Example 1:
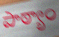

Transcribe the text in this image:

పాఠ్యాం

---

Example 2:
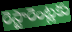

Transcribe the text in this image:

రెస్టారెంట్లకు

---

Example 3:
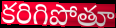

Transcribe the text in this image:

కరిగిపోతూ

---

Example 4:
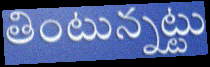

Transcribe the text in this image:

తింటున్నట్టు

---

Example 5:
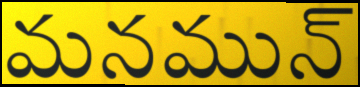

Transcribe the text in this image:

మనమున్